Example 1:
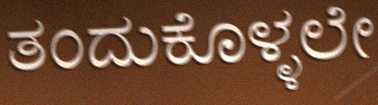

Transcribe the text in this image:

ತಂದುಕೊಳ್ಳಲೇ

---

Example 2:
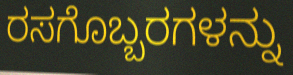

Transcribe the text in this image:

ರಸಗೊಬ್ಬರಗಳನ್ನು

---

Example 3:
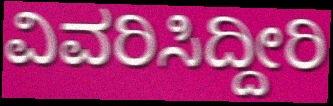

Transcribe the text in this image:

ವಿವರಿಸಿದ್ದೀರಿ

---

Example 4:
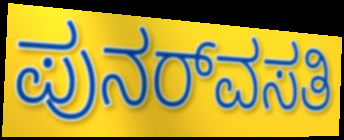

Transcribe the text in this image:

ಪುನರ್‌ವಸತಿ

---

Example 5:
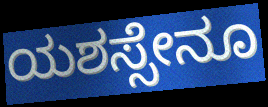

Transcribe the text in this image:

ಯಶಸ್ಸೇನೂ